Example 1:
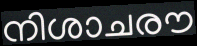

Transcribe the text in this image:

നിശാചരൗ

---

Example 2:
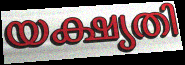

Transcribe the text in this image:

യക്ഷ്യതി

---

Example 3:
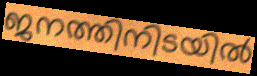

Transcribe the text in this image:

ജനത്തിനിടയിൽ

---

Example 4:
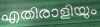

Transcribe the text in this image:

എതിരാളിയും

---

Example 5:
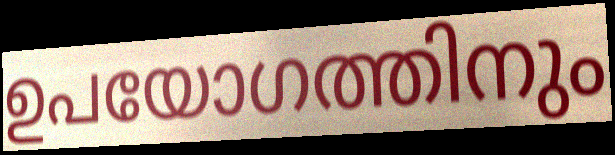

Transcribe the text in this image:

ഉപയോഗത്തിനും